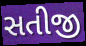
સતીજી